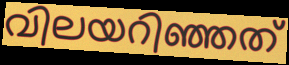
വിലയറിഞ്ഞത്